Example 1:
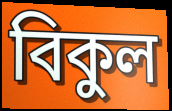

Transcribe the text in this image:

বিকুল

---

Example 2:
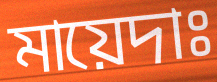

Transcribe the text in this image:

মায়েদাঃ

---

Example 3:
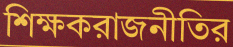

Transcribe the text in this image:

শিক্ষকরাজনীতির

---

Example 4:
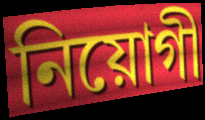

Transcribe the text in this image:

নিয়োগী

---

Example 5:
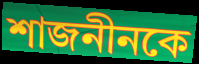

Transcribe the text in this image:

শাজনীনকে